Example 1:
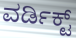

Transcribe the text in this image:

ವರ್ಡಿಕ್ಟ್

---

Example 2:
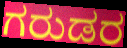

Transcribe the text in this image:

ಗರುಡರ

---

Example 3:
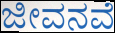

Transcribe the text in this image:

ಜೀವನವೆ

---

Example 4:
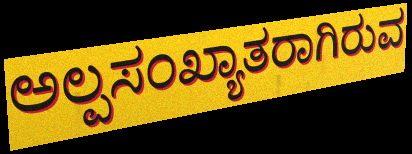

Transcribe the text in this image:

ಅಲ್ಪಸಂಖ್ಯಾತರಾಗಿರುವ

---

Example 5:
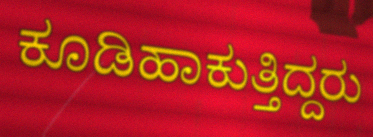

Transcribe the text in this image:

ಕೂಡಿಹಾಕುತ್ತಿದ್ದರು